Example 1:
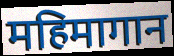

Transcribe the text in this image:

महिमागान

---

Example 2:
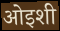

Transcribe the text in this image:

ओइशी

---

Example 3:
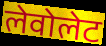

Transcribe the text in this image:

लेवोलेट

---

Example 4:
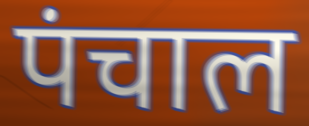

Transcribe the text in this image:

पंचाल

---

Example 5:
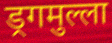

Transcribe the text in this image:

ड्रगमुल्ला